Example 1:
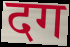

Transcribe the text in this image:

दग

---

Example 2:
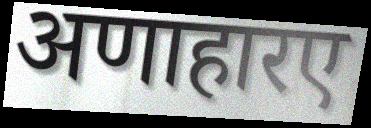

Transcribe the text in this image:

अणाहारए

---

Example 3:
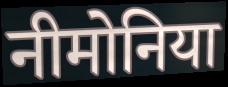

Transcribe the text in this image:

नीमोनिया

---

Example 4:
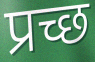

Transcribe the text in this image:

प्रच्छ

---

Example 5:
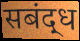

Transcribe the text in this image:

सबंद्ध